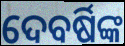
ଦେବର୍ଷିଙ୍କ